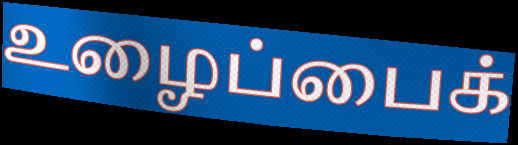
உழைப்பைக்